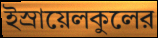
ইস্রায়েলকুলের